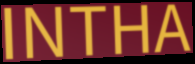
INTHA